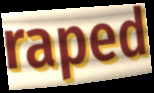
raped